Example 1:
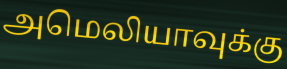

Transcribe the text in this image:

அமெலியாவுக்கு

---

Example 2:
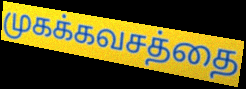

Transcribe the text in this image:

முகக்கவசத்தை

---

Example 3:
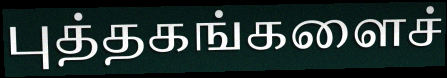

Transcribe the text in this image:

புத்தகங்களைச்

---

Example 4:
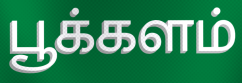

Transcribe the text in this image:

பூக்களம்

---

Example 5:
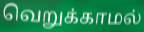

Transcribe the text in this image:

வெறுக்காமல்